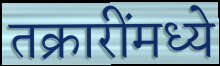
तक्रारींमध्ये